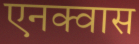
एनक्वास